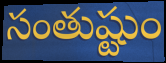
సంతుష్టుం